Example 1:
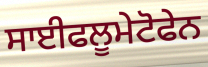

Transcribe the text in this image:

ਸਾਈਫਲੂਮੇਟੋਫੇਨ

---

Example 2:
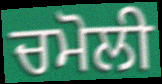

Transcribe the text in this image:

ਚਮੋਲੀ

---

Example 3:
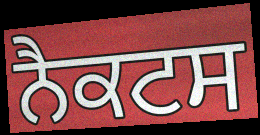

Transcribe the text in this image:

ਨੈਕਟਸ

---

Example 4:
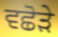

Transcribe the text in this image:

ਵਛੋੜੇ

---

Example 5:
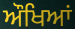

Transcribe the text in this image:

ਔਖਿਆਂ